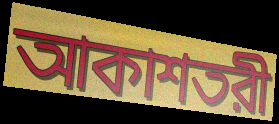
আকাশতরী